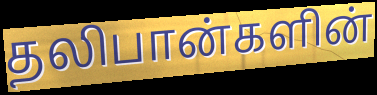
தலிபான்களின்